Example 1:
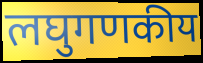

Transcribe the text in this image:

लघुगणकीय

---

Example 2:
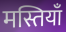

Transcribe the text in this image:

मस्तियाँ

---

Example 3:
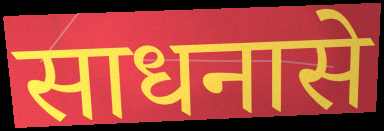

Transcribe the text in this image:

साधनासे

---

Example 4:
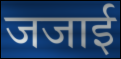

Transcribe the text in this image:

जजाई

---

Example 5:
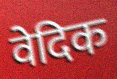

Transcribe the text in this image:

वेदिक